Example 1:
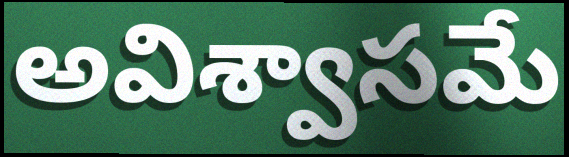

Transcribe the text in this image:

అవిశ్వాసమే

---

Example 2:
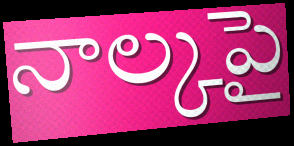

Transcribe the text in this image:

నాల్కపై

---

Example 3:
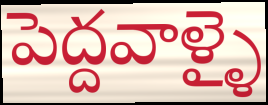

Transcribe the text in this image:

పెద్దవాళ్ళై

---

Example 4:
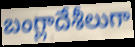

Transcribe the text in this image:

బంగ్లాదేశీలుగా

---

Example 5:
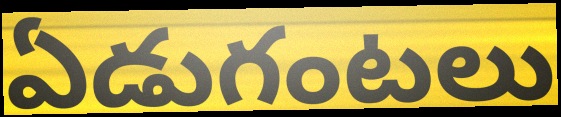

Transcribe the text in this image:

ఏడుగంటలు